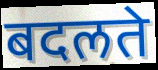
बदलते